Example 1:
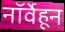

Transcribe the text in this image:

नॉर्वेहून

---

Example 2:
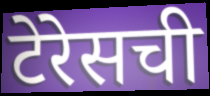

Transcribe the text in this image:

टेरेसची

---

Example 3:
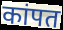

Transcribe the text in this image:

कांपत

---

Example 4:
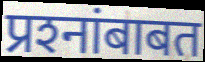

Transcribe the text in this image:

प्रश्‍नांबाबत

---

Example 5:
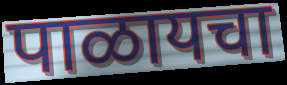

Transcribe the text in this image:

पाळायचा